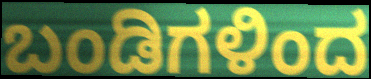
ಬಂಡಿಗಳಿಂದ